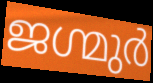
ജഗ്മുർ